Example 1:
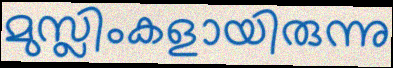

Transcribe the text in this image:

മുസ്ലിംകളായിരുന്നു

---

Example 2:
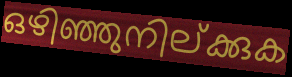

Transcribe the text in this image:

ഒഴിഞ്ഞുനില്ക്കുക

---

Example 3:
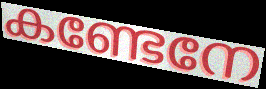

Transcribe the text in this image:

കണ്ടേനേ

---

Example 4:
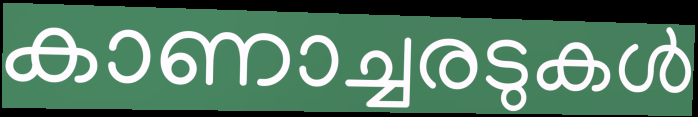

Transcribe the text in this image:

കാണാച്ചരടുകൾ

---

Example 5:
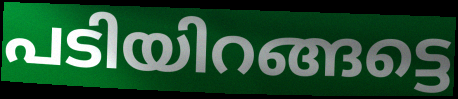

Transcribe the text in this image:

പടിയിറങ്ങട്ടെ